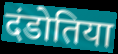
दंडोतिया